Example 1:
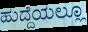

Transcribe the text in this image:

ಹುದ್ದೆಯಲ್ಲೂ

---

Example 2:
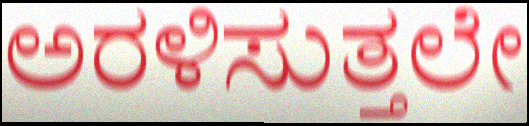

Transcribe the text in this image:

ಅರಳಿಸುತ್ತಲೇ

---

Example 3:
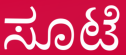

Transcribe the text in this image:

ಸೂಟೆ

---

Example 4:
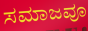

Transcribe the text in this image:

ಸಮಾಜವೂ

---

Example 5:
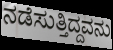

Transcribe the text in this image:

ನಡೆಸುತ್ತಿದ್ದವನು